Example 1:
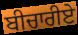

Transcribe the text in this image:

ਬੀਚਾਰੀਏ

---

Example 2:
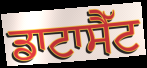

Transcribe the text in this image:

ਡਾਟਾਸੈੱਟ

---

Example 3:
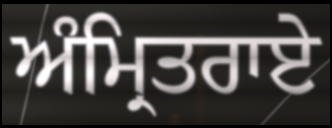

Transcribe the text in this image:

ਅੰਮ੍ਰਿਤਰਾਏ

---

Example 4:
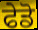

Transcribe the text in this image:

ਫੇਡੋ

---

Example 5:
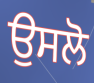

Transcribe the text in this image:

ਉਸਲੋ